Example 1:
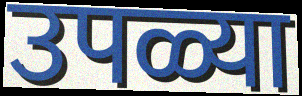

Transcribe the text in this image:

उपळ्या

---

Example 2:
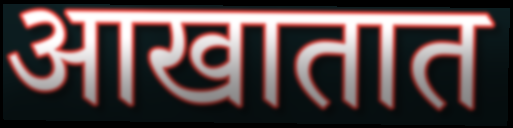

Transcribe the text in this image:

आखातात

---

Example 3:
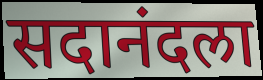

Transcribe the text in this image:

सदानंदला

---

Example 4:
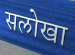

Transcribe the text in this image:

सलोखा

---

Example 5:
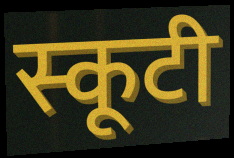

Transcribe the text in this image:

स्कूटी